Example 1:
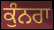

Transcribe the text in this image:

ਕੁੰਨਰਾ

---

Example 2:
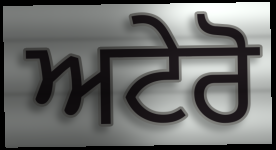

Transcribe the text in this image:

ਅਟੇਰੋ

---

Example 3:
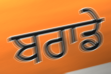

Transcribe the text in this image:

ਬਰਾਡੇ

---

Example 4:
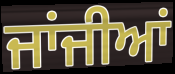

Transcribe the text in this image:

ਜਾਂਜੀਆਂ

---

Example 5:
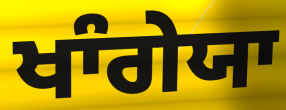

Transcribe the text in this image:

ਖਾੰਗੇਯਾ